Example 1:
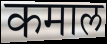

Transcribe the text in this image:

कमाल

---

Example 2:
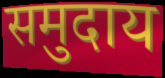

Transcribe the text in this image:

समुदाय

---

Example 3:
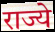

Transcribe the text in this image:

राज्ये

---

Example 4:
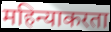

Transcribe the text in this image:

महिन्याकरता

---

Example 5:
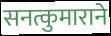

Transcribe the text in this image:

सनत्कुमाराने